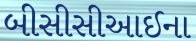
બીસીસીઆઈના